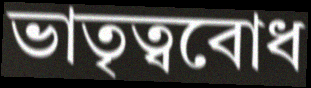
ভাতৃত্ববোধ